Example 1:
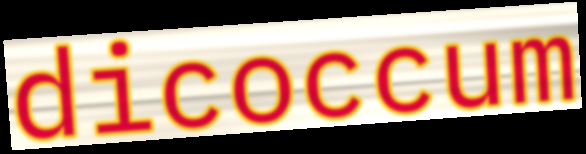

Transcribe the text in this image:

dicoccum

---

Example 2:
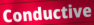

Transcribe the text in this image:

Conductive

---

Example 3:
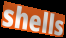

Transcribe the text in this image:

shells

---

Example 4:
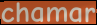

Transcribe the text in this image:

chamar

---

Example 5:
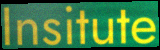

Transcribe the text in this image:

Insitute